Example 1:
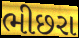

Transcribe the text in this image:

ભીછરા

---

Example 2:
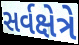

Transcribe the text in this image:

સર્વક્ષેત્રે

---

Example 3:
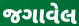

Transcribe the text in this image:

જગાવેલ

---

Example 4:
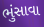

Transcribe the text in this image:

ભુંસાવા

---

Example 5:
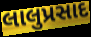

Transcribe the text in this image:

લાલુપ્રસાદ